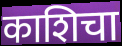
काशिचा